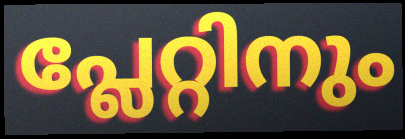
പ്ലേറ്റിനും